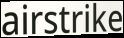
airstrike